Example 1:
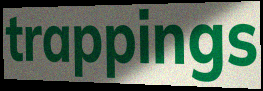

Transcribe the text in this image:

trappings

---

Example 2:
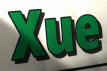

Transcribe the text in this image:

Xue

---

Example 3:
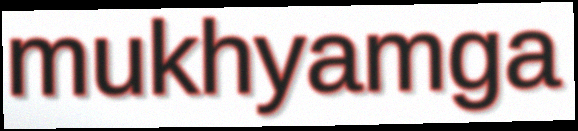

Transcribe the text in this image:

mukhyamga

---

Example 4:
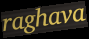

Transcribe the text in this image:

raghava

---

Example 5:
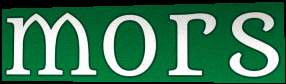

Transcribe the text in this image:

mors